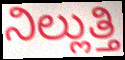
ನಿಲ್ಲುತ್ತಿ